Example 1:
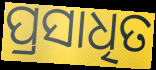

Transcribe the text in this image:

ପ୍ରସାଧିତ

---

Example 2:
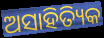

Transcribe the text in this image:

ଅସାହିତ୍ୟିକ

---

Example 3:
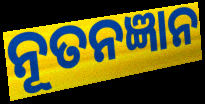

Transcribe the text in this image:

ନୂତନଜ୍ଞାନ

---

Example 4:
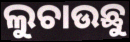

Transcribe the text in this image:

ଲୁଚାଉଛୁ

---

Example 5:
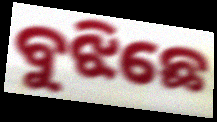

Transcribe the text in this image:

ବୁଝିଛେ